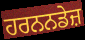
ਹਰਨਨਡੇਜ਼